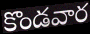
కొండవార